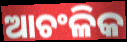
ଆଚଂଳିକ